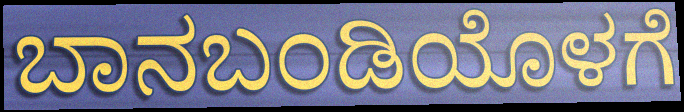
ಬಾನಬಂಡಿಯೊಳಗೆ